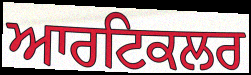
ਆਰਟਿਕਲਰ